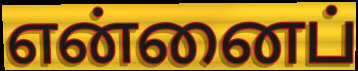
என்னைப்